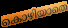
കൊഴിയാതെ